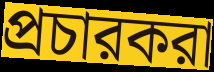
প্রচারকরা